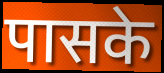
पासके